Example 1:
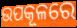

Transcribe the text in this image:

ଉପକୂଳରେ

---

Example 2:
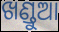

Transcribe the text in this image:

ଖଣ୍ଡୁଆ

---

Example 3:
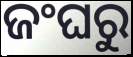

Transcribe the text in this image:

ଜଂଘରୁ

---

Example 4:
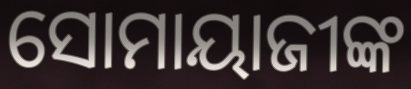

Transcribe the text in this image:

ସୋମାୟାଜୀଙ୍କ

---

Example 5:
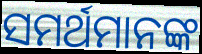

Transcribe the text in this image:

ସମର୍ଥମାନଙ୍କ